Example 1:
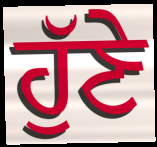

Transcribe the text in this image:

ਹੁੱਣੇ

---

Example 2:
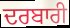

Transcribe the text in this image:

ਦਰਬਾਰੀ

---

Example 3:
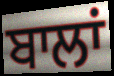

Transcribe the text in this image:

ਬਾਲਾਂ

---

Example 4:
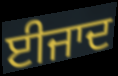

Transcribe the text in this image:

ਈਜਾਦ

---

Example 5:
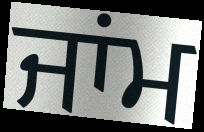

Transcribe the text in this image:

ਜਾਂਮ